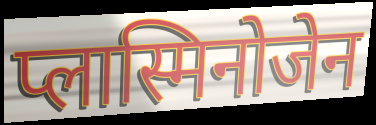
प्लास्मिनोजेन